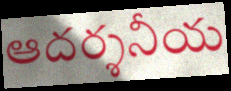
ఆదర్శనీయ